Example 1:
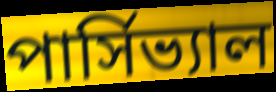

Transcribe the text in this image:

পার্সিভ্যাল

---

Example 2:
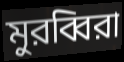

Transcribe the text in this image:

মুরব্বিরা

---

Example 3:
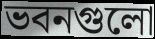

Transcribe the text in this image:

ভবনগুলো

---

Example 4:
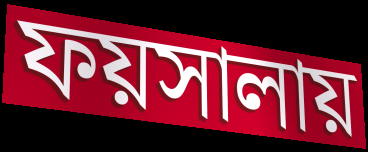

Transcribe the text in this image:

ফয়সালায়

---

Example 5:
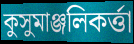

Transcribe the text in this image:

কুসুমাঞ্জলিকর্ত্তা